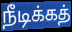
நீடிக்கத்